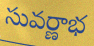
సువర్ణాభ